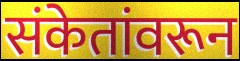
संकेतांवरून